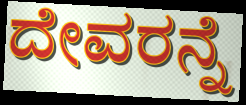
ದೇವರನ್ನೆ